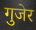
गुजेर